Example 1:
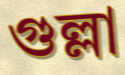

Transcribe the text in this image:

গুল্লা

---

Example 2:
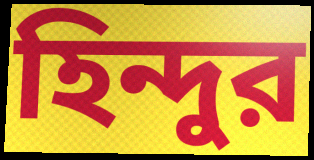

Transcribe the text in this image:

হিন্দুর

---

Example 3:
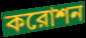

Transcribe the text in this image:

করোশন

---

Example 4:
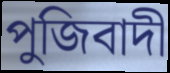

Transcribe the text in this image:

পুজিবাদী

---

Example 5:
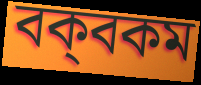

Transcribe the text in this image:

বক্‌বকম